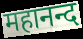
महानन्द